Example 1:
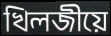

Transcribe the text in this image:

খিলজীয়ে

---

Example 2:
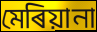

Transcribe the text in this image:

মেৰিয়ানা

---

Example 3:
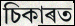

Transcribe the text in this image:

চিকাৰত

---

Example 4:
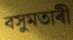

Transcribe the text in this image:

বসুমতাৰী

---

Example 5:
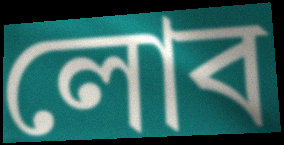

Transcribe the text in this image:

লোব